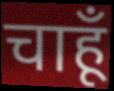
चाहूँ